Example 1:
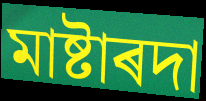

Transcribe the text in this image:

মাষ্টাৰদা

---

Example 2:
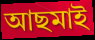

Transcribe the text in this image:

আছমাই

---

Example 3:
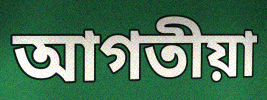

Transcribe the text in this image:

আগতীয়া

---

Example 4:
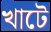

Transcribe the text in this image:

খাটে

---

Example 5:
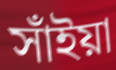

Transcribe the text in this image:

সাঁইয়া